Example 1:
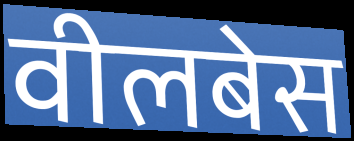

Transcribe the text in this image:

वीलबेस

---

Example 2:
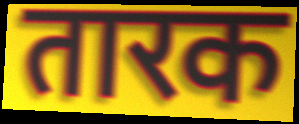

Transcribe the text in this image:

तारक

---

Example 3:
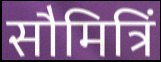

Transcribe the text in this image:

सौमित्रिं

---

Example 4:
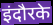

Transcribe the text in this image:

इंदौरके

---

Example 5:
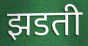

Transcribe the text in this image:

झडती